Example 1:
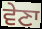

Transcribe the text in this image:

ਵੇਣਾ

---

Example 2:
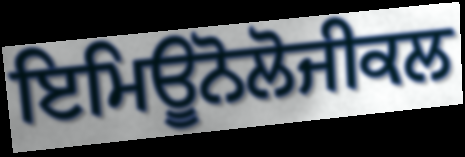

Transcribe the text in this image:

ਇਮਿਊਨੋਲੋਜੀਕਲ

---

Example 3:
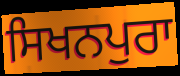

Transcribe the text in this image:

ਸਿਖਨਪੁਰਾ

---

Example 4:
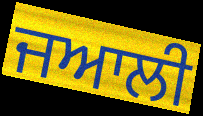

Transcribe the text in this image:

ਜਆਲੀ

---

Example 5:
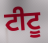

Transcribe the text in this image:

ਟੀਟੂ